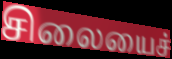
சிலையைச்